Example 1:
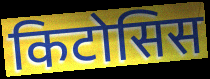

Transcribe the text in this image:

किटोसिस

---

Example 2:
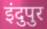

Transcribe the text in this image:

इंदुपुर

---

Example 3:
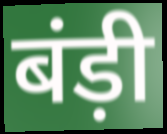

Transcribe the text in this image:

बंड़ी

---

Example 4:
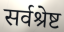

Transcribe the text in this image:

सर्वश्रेष्ट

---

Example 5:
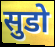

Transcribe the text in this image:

सुडो